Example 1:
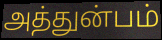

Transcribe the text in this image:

அத்துன்பம்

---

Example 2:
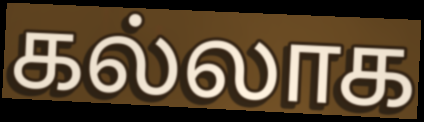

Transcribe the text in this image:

கல்லாக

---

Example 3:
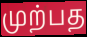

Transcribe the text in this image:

முற்பத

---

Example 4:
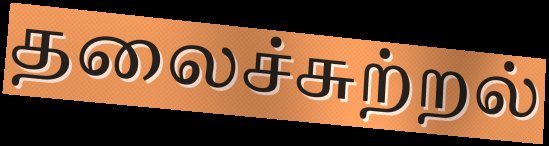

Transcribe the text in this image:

தலைச்சுற்றல்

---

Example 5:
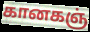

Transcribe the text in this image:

கானகஞ்